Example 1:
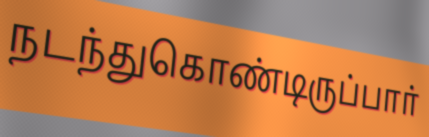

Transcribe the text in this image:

நடந்துகொண்டிருப்பார்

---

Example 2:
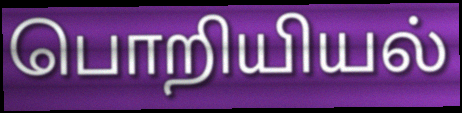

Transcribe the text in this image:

பொறியியல்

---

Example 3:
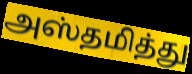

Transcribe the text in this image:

அஸ்தமித்து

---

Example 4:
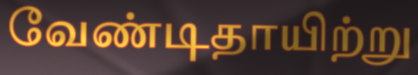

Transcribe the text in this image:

வேண்டிதாயிற்று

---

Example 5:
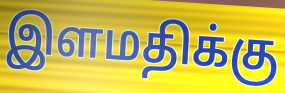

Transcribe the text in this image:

இளமதிக்கு